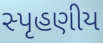
સ્પૃહણીય